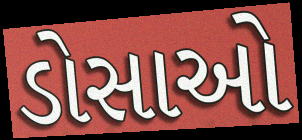
ડોસાઓ